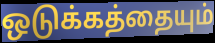
ஒடுக்கத்தையும்